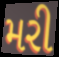
મરી